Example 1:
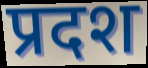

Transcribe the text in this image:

प्रदश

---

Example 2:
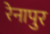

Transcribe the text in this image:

रेनापुर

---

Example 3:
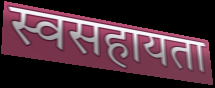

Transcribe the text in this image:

स्‍वसहायता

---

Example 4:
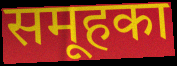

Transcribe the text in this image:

समूहका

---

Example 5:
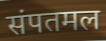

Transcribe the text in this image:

संपतमल